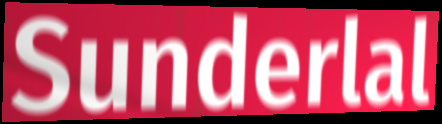
Sunderlal